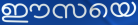
ഈസയെ